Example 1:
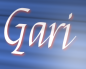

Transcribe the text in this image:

Gari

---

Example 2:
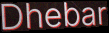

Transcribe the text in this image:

Dhebar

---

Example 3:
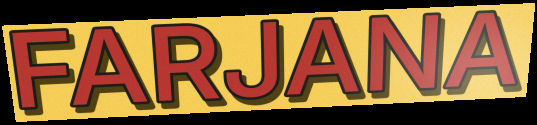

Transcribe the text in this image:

FARJANA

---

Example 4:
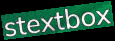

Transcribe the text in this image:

stextbox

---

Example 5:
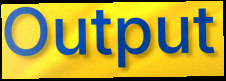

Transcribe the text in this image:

Output